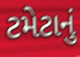
ટમેટાનું